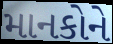
માનકોને